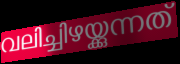
വലിച്ചിഴയ്ക്കുന്നത്